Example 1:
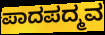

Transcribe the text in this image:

ಪಾದಪದ್ಮವ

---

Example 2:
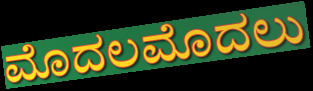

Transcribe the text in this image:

ಮೊದಲಮೊದಲು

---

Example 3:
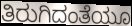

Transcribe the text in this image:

ತಿರುಗಿದಂತೆಯೂ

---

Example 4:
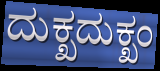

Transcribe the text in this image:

ದುಕ್ಖದುಕ್ಖಂ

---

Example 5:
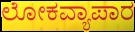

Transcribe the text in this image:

ಲೋಕವ್ಯಾಪಾರ